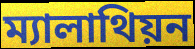
ম্যালাথিয়ন